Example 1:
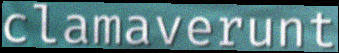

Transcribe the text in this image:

clamaverunt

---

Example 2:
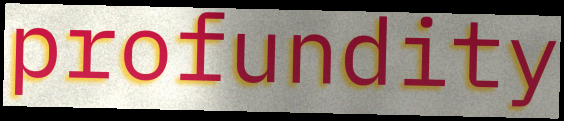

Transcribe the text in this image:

profundity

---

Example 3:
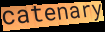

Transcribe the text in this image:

catenary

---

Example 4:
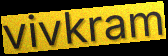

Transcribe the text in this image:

vivkram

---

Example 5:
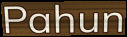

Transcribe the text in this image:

Pahun